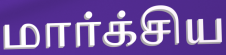
மார்க்சிய